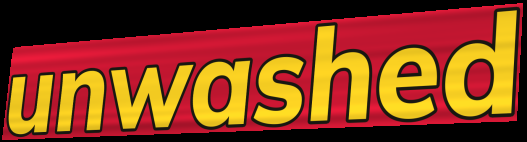
unwashed